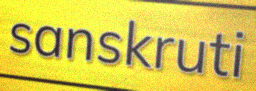
sanskruti